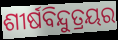
ଶୀର୍ଷବିନ୍ଦୁତ୍ରୟର